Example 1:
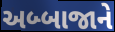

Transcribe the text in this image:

અબ્બાજાને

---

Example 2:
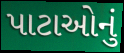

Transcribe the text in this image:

પાટાઓનું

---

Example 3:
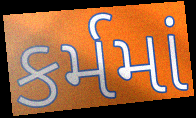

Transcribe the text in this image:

કર્મમાં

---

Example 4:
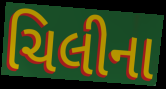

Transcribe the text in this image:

ચિલીના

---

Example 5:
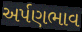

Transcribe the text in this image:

અર્પણભાવ